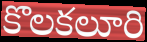
కొలకలూరి